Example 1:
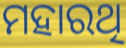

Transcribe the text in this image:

ମହାରଥି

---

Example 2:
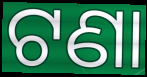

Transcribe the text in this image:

ଟଣା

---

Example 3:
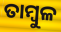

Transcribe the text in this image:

ତାମ୍ୱୁଳ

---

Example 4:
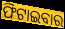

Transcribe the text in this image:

ଫିଟାଇବାର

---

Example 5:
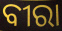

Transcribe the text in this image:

ବୀରା